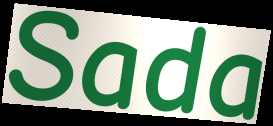
Sada